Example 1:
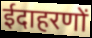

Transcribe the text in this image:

ईदाहरणों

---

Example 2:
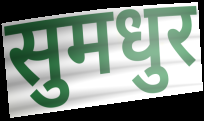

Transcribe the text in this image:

सुमधुर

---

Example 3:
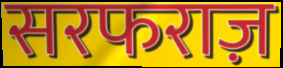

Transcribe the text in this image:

सरफराज़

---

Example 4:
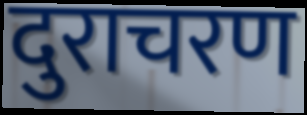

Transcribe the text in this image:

दुराचरण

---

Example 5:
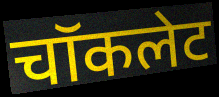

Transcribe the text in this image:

चॉकलेट